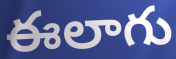
ఈలాగు